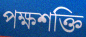
পক্ষশক্তি